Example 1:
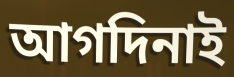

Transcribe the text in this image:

আগদিনাই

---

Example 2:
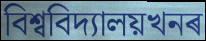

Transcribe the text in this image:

বিশ্ববিদ্যালয়খনৰ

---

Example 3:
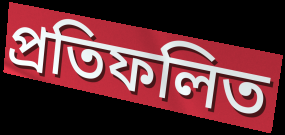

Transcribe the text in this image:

প্ৰতিফলিত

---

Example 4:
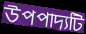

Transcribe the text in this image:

উপপাদ্যটি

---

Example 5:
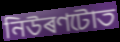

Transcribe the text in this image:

নিউৰণটোত